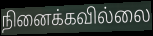
நினைக்கவில்லை